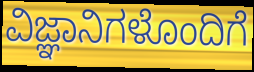
ವಿಜ್ಞಾನಿಗಳೊಂದಿಗೆ